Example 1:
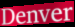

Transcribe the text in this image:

Denver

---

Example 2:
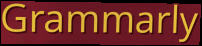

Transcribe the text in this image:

Grammarly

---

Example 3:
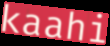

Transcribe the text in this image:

kaahi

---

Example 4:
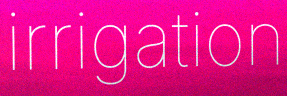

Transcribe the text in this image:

irrigation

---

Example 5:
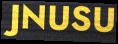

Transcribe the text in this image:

JNUSU